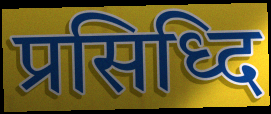
प्रसिध्दि